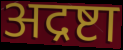
अद्रष्टा